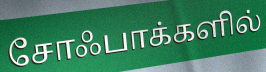
சோஃபாக்களில்